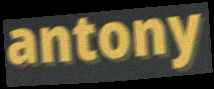
antony